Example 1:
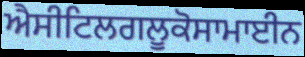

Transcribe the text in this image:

ਐਸੀਟਿਲਗਲੂਕੋਸਾਮਾਈਨ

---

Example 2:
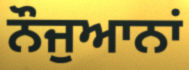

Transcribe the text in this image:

ਨੌਜੁਆਨਾਂ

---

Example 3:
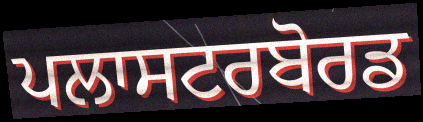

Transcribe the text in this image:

ਪਲਾਸਟਰਬੋਰਡ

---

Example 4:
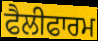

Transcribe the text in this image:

ਫੈਲੀਫਾਰਮ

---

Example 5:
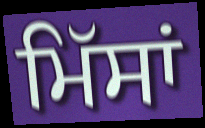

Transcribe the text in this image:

ਮਿੱਸਾਂ